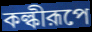
কল্কীরূপে